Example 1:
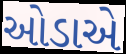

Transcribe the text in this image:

ઓડાએ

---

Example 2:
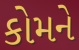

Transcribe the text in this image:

કોમને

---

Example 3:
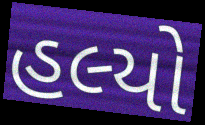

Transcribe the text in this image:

હલ્યો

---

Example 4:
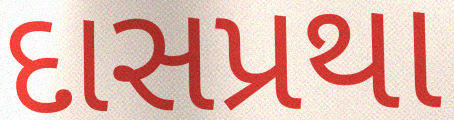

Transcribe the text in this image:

દાસપ્રથા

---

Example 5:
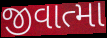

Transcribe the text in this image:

જીવાત્મા